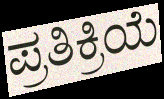
ಪ್ರತಿಕ್ರಿಯೆ